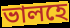
ভালহে